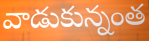
వాడుకున్నంత